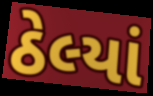
ઠેલ્યાં